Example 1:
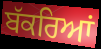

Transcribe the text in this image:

ਬੱਕਰਿਆਂ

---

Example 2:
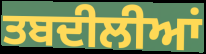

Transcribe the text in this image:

ਤਬਦੀਲੀਆਂ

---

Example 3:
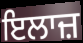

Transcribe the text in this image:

ਇਲਾਜ਼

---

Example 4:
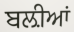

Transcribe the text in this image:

ਬਲ਼ੀਆਂ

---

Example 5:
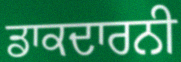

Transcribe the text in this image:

ਡਾਕਦਾਰਨੀ